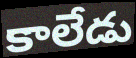
కాలేడు